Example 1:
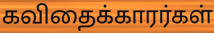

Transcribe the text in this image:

கவிதைக்காரர்கள்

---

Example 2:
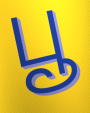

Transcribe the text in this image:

பூ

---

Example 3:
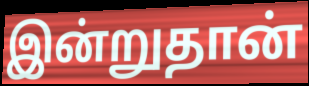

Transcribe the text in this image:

இன்றுதான்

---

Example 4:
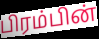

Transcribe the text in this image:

பிரம்பின்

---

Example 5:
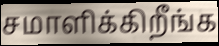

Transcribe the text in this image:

சமாளிக்கிறீங்க